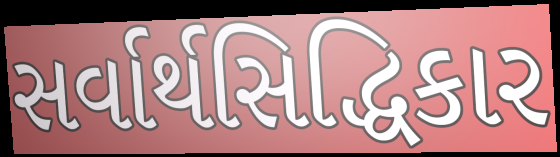
સર્વાર્થસિદ્ધિકાર